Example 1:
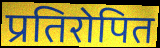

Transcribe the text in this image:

प्रतिरोपित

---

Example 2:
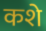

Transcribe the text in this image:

कशे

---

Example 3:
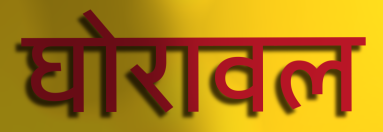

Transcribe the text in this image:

घोरावल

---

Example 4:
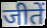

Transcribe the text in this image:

जीतें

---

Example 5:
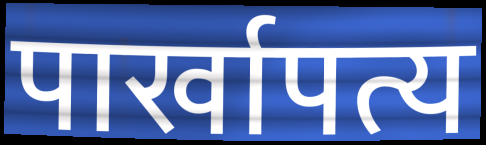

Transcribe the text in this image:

पार्खापत्य